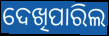
ଦେଖିପାରିଲ